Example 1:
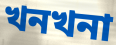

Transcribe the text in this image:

খনখনা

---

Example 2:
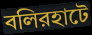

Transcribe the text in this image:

বলিরহাটে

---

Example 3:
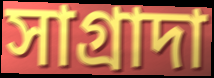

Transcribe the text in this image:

সাগ্রাদা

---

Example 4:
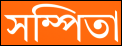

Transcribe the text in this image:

সম্পিতা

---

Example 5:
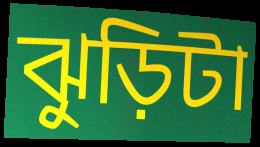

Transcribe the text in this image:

ঝুড়িটা